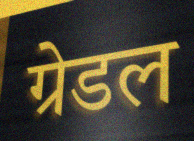
ग्रेडल